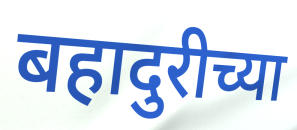
बहादुरीच्या